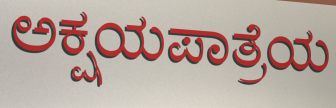
ಅಕ್ಷಯಪಾತ್ರೆಯ